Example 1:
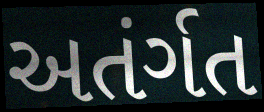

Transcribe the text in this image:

અતંર્ગત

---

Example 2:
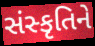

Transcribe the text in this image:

સંસ્કૃતિને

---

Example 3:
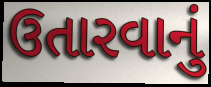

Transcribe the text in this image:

ઉતારવાનું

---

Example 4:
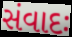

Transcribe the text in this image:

સંવાદઃ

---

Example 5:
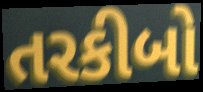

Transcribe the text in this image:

તરકીબો